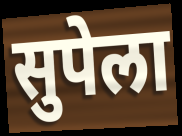
सुपेला